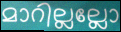
മാറില്ലല്ലോ